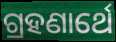
ଗ୍ରହଣାର୍ଥେ